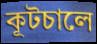
কূটচালে